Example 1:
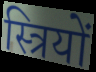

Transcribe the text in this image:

स्‍त्रियों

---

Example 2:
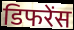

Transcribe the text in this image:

डिफरेंस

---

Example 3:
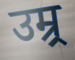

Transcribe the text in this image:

उम्र्र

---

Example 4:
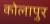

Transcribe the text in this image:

कोलापुर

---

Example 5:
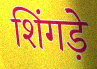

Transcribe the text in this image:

शिंगड़े